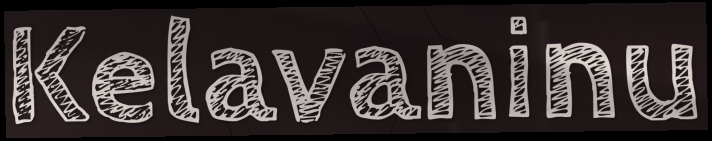
Kelavaninu